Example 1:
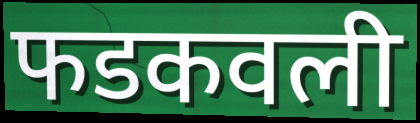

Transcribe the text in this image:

फडकवली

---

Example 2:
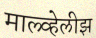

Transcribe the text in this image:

माल्व्हेलीझ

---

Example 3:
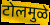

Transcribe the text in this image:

टोलमुळे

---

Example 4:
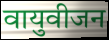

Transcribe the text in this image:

वायुवीजन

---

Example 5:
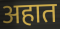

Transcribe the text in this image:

अहात